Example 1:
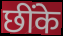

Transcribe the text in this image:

छींके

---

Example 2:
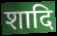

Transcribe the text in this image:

शादि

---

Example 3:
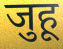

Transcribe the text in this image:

जुहू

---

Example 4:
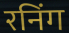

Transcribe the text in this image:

रनिंग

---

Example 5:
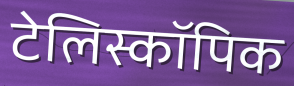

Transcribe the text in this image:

टेलिस्कॉपिक